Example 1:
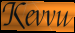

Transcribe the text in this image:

Kevvu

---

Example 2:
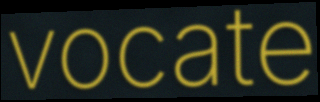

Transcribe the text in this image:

vocate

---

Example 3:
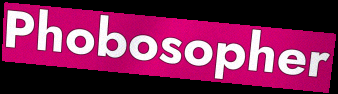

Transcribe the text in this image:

Phobosopher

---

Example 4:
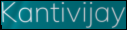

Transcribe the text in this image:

Kantivijay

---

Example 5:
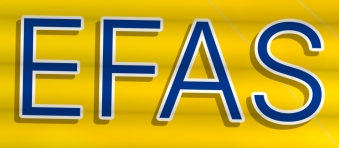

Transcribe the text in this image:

EFAS